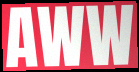
AWW